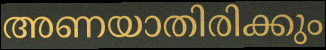
അണയാതിരിക്കും